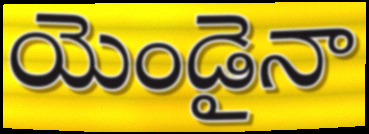
యెండైనా